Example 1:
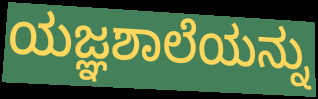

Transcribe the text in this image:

ಯಜ್ಞಶಾಲೆಯನ್ನು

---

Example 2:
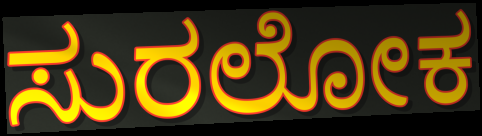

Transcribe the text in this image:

ಸುರಲೋಕ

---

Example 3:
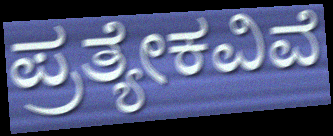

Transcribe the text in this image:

ಪ್ರತ್ಯೇಕವಿವೆ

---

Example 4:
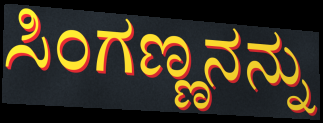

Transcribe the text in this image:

ಸಿಂಗಣ್ಣನನ್ನು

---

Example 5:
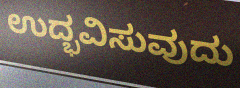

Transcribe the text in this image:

ಉದ್ಭವಿಸುವುದು